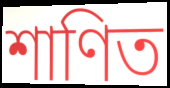
শাণিত